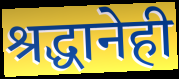
श्रद्धानेही